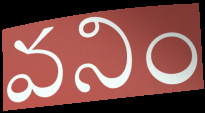
వనిం